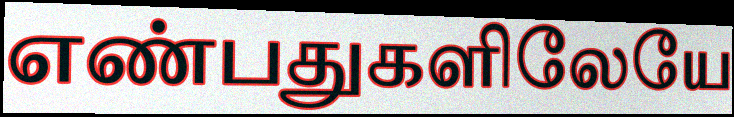
எண்பதுகளிலேயே